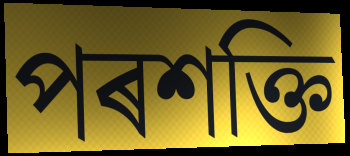
পৰশক্তি